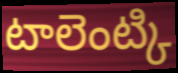
టాలెంట్కి